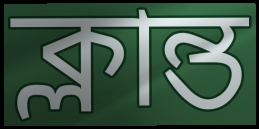
ক্লান্ত